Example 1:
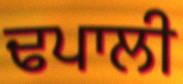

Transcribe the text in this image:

ਢਪਾਲੀ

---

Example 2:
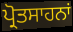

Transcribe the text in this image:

ਪ੍ਰੋਤਸਾਹਨਾਂ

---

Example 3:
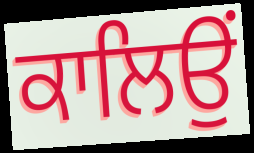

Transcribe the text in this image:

ਕਾਲਿਉਂ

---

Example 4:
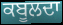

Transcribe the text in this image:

ਕਬੂਲਦਾ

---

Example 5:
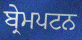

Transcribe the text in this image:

ਬ੍ਰੇਮਪਟਨ